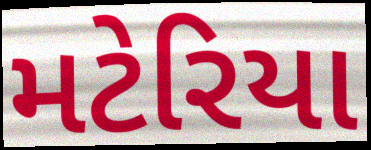
મટેરિયા